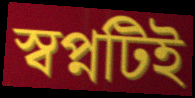
স্বপ্নটিই